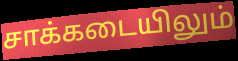
சாக்கடையிலும்